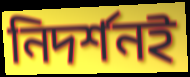
নিদর্শনই